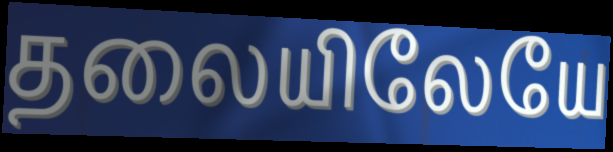
தலையிலேயே